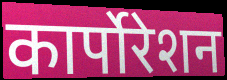
कार्पोरेशन